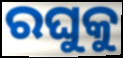
ରଘୁକୁ